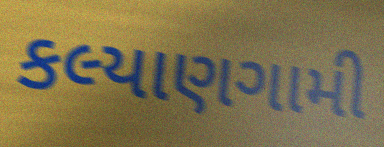
કલ્યાણગામી